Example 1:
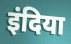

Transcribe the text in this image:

इंदिया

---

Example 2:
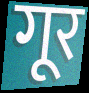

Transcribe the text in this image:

गूर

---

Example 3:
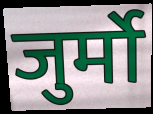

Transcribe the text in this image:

जुर्मो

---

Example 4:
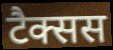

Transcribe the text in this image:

टैक्सस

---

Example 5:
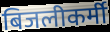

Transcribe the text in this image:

बिजलीकर्मी